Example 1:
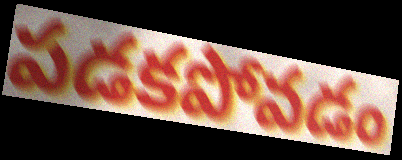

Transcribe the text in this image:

పడకపోవడం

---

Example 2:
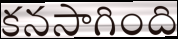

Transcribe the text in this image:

కనసాగింది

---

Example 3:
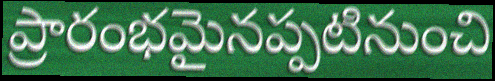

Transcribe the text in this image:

ప్రారంభమైనప్పటినుంచి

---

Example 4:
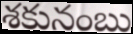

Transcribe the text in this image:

శకునంబు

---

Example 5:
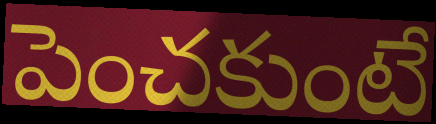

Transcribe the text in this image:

పెంచకుంటే